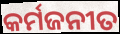
କର୍ମଜନୀତ